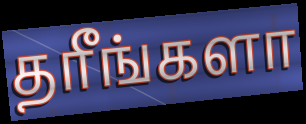
தரீங்களா